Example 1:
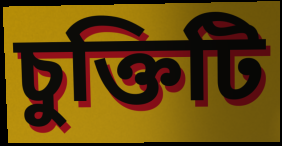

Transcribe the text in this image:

চুক্তিটি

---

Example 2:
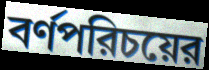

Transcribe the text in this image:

বর্ণপরিচয়ের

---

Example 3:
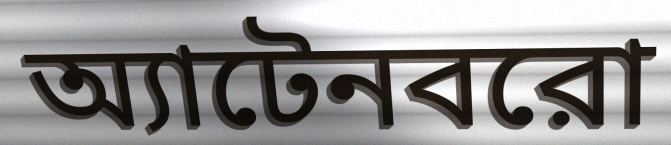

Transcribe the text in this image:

অ্যাটেনবরো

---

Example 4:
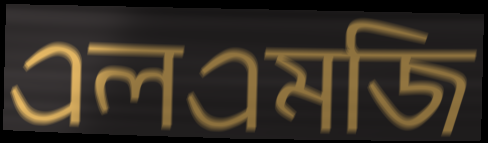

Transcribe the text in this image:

এলএমজি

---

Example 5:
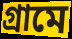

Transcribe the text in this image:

গ্রামে